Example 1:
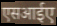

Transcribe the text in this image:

एसआईए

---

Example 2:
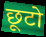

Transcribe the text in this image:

छूटो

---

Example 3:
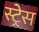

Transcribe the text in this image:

स्ट्रेस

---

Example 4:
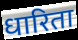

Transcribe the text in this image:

धारिता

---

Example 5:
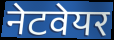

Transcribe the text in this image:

नेटवेयर